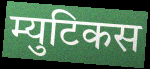
म्युटिकस